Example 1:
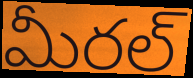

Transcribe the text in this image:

మీరల్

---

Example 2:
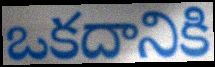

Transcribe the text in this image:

ఒకదానికి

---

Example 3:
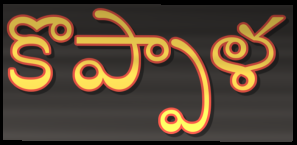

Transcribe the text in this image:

కొప్పాళ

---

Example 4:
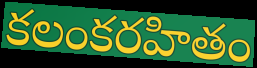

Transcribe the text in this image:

కలంకరహితం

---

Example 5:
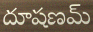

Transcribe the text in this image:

దూషణమ్